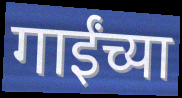
गाईंच्या